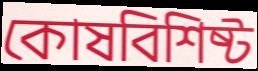
কোষবিশিষ্ট